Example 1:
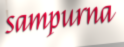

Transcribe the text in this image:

sampurna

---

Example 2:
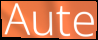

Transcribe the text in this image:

Aute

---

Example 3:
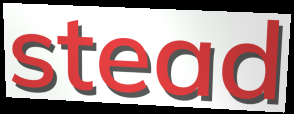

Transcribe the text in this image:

stead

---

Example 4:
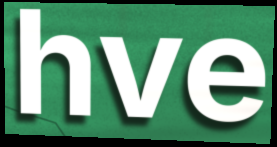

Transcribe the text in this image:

hve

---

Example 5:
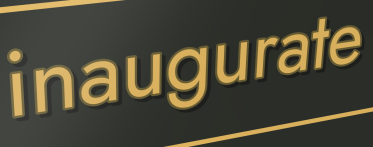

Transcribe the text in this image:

inaugurate